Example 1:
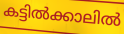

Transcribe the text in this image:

കട്ടിൽക്കാലിൽ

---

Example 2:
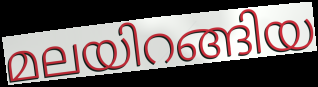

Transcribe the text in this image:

മലയിറങ്ങിയ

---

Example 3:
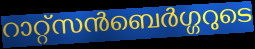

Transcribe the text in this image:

റാറ്റ്സൻബെർഗ്ഗറുടെ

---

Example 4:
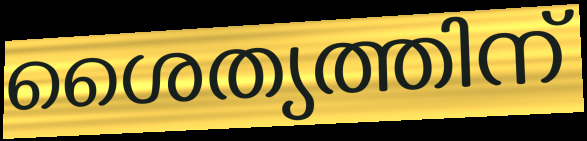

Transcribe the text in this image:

ശൈത്യത്തിന്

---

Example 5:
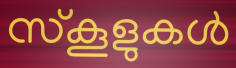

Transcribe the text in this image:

സ്കൂളുകൾ